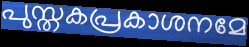
പുസ്തകപ്രകാശനമേ